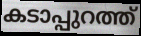
കടാപ്പുറത്ത്